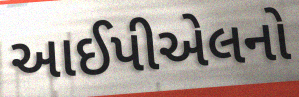
આઈપીએલનો